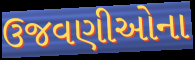
ઉજવણીઓના